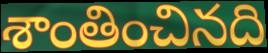
శాంతించినది